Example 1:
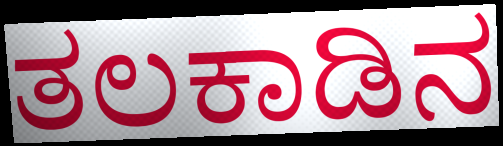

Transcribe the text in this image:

ತಲಕಾಡಿನ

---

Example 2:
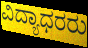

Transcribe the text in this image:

ವಿದ್ಯಾಧರರು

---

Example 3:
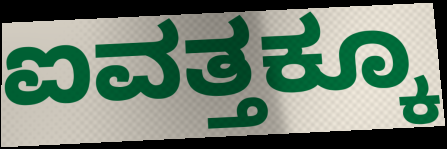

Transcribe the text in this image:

ಐವತ್ತಕ್ಕೂ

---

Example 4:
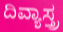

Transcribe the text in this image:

ದಿವ್ಯಾಸ್ತ್ರ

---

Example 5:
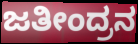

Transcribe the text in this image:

ಜತೀಂದ್ರನ